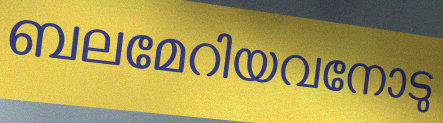
ബലമേറിയവനോടു